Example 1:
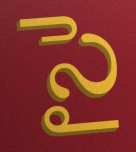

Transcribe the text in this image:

సై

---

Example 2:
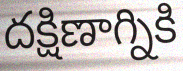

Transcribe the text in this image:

దక్షిణాగ్నికి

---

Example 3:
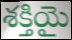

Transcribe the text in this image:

శక్తియై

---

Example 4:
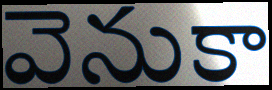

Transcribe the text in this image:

వెనుకా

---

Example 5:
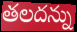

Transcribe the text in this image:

తలదన్ను